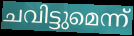
ചവിട്ടുമെന്ന്